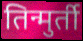
तिन्मुर्ती